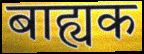
बाह्यक